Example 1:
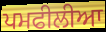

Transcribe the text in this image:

ਪਮਫੀਲੀਆ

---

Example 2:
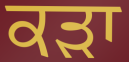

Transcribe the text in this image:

ਕੜਾ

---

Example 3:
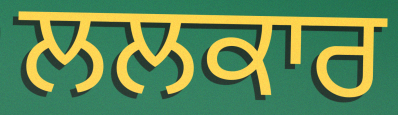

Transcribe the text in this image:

ਲਲਕਾਰ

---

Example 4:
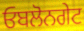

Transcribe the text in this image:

ਓਬਲੋਨਗੇਟ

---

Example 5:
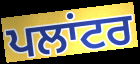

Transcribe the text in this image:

ਪਲਾਂਟਰ